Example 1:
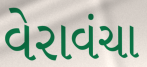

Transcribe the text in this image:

વેરાવંચા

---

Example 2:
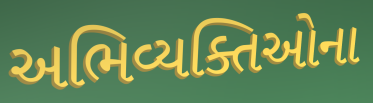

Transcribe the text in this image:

અભિવ્યક્તિઓના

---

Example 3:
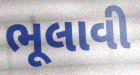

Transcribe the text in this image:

ભૂલાવી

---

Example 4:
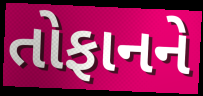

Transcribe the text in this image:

તોફાનને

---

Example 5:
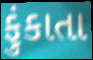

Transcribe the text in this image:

ફુંકાતા